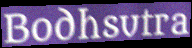
Bodhsutra